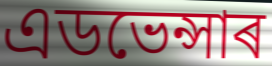
এডভেন্সাৰ